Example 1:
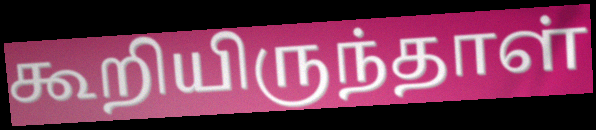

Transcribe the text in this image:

கூறியிருந்தாள்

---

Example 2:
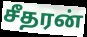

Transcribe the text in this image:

சீதரன்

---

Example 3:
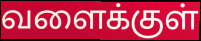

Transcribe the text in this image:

வளைக்குள்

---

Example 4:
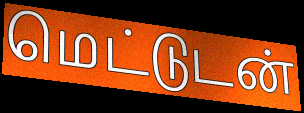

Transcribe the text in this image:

மெட்டுடன்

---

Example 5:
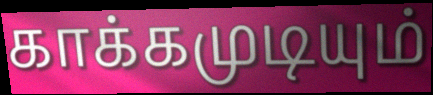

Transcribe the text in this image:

காக்கமுடியும்